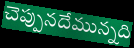
చెప్పునదేమున్నది